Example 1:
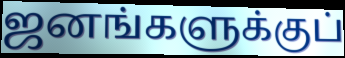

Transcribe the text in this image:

ஜனங்களுக்குப்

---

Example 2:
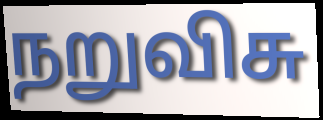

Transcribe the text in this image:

நறுவிசு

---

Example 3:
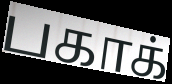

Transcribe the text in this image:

பகாக்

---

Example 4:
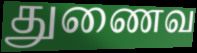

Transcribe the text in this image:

துணைவ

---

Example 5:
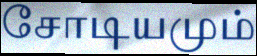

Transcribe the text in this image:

சோடியமும்